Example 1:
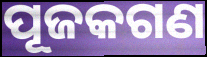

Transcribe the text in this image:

ପୂଜକଗଣ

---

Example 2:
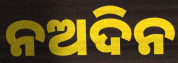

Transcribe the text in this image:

ନଅଦିନ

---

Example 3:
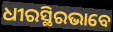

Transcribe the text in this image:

ଧୀରସ୍ଥିରଭାବେ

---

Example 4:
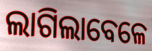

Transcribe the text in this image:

ଲାଗିଲାବେଳେ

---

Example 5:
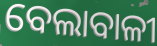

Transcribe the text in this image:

ବେଲାବାଳୀ